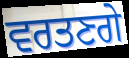
ਵਰਤਣਗੇ